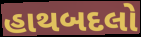
હાથબદલો